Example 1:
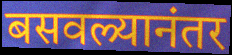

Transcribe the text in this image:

बसवल्यानंतर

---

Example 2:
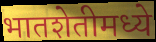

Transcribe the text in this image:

भातशेतीमध्ये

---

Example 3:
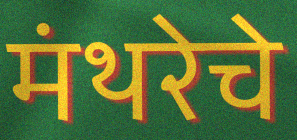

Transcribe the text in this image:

मंथरेचे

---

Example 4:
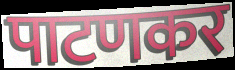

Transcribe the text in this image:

पाटणकर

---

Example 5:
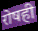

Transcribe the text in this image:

रोषही